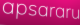
apsararu